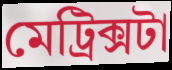
মেট্রিক্সটা